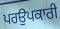
ਪਰਉਪਕਾਰੀ